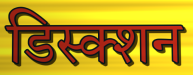
डिस्क्शन